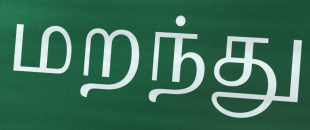
மறந்து